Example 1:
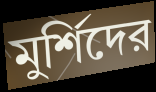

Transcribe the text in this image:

মুর্শিদের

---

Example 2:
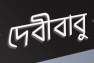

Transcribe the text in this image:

দেবীবাবু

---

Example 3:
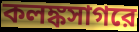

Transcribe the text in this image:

কলঙ্কসাগরে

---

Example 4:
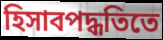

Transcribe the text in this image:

হিসাবপদ্ধতিতে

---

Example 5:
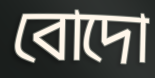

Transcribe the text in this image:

বোদো